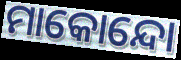
ମାକୋନ୍ଦୋ